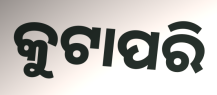
କୁଟାପରି